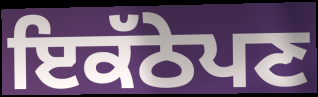
ਇਕੱਠੇਪਣ